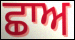
ਛਾਅ